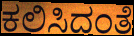
ಕಲಿಸಿದಂತೆ